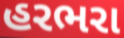
હરભરા